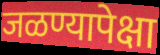
जळण्यापेक्षा